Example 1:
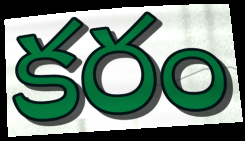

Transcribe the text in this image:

కరం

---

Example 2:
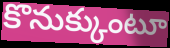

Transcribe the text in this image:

కొనుక్కుంటూ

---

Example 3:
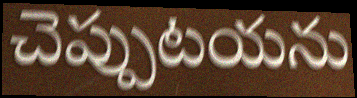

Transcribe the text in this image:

చెప్పుటయను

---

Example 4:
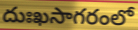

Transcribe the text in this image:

దుఃఖసాగరంలో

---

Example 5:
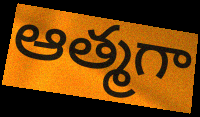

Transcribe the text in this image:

ఆత్మగా